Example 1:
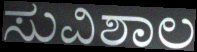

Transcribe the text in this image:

ಸುವಿಶಾಲ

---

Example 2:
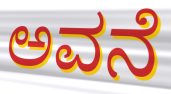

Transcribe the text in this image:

ಅವನೆ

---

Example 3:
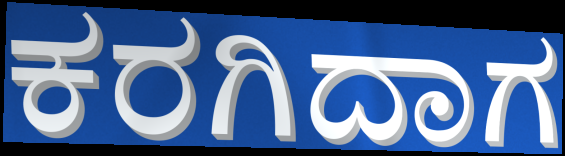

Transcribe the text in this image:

ಕರಗಿದಾಗ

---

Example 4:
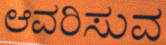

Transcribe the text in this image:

ಆವರಿಸುವ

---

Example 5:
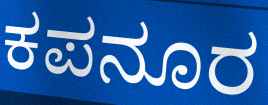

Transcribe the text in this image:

ಕಪನೂರ